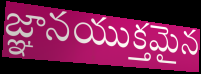
జ్ఞానయుక్తమైన